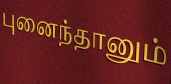
புனைந்தானும்